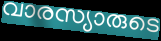
വാരസ്യാരുടെ